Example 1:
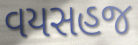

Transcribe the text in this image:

વયસહજ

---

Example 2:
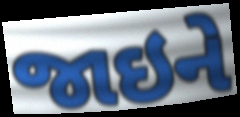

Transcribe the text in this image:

જાઇને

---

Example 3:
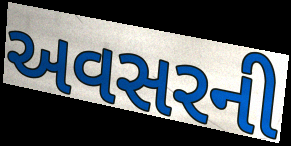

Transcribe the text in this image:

અવસરની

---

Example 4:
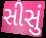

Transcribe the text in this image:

સીસું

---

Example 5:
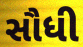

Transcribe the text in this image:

સૌધી